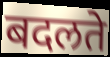
बदलते